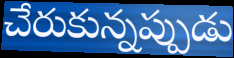
చేరుకున్నప్పుడు